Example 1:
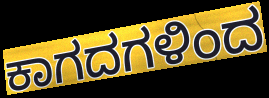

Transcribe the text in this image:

ಕಾಗದಗಳಿಂದ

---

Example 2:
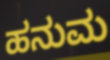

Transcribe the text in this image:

ಹನುಮ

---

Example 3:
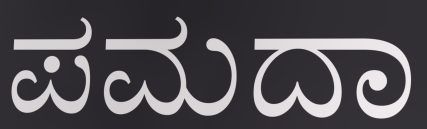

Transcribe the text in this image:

ಪಮದಾ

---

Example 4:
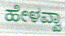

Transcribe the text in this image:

ಹೇಳವ್ವಾ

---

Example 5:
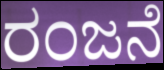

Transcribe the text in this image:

ರಂಜನೆ